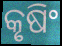
କୃଷିଂ